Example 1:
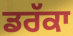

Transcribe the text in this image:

ਡਰੱਕਾ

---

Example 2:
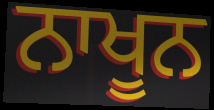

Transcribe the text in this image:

ਨਾਖੂਨ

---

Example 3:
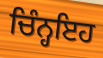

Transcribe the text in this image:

ਚਿੰਨ੍ਹਇਹ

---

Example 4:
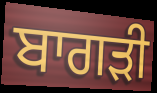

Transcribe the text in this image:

ਬਾਗੜੀ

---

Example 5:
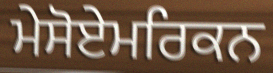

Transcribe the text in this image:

ਮੇਸੋਏਮਰਿਕਨ